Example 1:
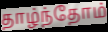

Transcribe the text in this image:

தாழ்ந்தோம்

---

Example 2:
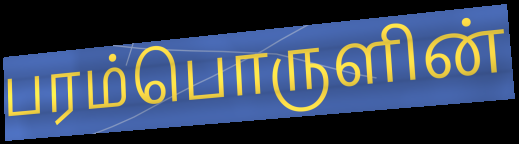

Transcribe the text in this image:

பரம்பொருளின்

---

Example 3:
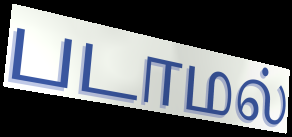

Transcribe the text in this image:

படாமல்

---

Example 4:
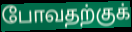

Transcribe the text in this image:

போவதற்குக்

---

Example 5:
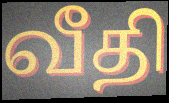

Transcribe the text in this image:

வீதி